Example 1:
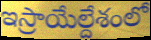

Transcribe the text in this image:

ఇస్రాయేల్దేశంలో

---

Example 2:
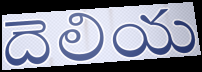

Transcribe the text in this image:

దెలియ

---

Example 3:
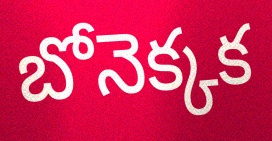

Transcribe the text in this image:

బోనెక్కక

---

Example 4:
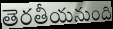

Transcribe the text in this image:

తెరతీయనుంది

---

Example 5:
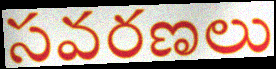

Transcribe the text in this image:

సవరణలు